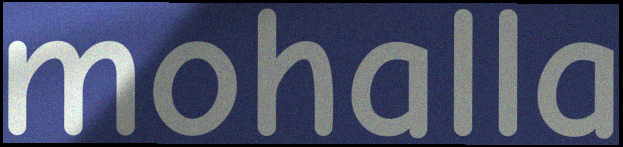
mohalla